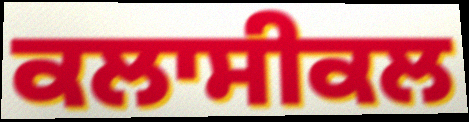
ਕਲਾਸੀਕਲ